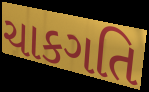
ચાકગતિ